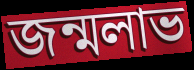
জন্মলাভ